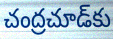
చంద్రచూడ్‌కు